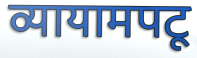
व्यायामपटू